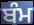
ਬੰਮ